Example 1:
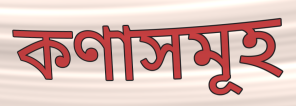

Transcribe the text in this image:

কণাসমূহ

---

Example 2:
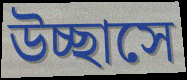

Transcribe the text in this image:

উচ্ছাসে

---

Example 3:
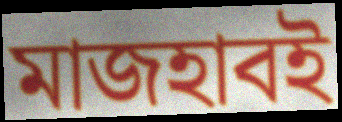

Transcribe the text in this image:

মাজহাবই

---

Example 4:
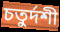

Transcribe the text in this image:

চতুর্দশী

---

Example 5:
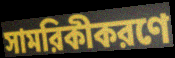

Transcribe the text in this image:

সামরিকীকরণে